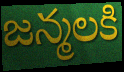
జన్మలకి